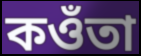
কওঁতা